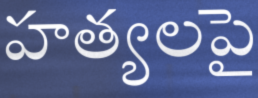
హత్యలపై